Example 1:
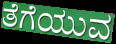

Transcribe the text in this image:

ತೆಗೆಯುವ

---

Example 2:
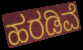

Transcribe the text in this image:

ಹರಡಿವೆ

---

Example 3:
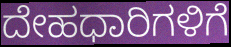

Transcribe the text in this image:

ದೇಹಧಾರಿಗಳಿಗೆ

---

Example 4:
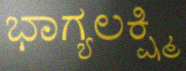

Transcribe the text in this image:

ಭಾಗ್ಯಲಕ್ಷ್ಮಿ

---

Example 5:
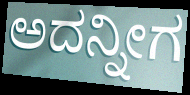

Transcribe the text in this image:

ಅದನ್ನೀಗ